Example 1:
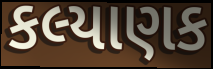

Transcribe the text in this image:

કલ્યાણક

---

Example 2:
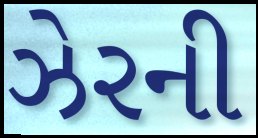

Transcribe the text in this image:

ઝેરની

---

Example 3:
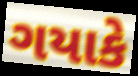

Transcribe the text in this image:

ગયાકે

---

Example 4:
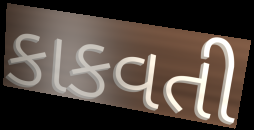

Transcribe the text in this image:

કાકવતી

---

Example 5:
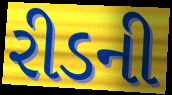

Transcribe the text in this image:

રીડની